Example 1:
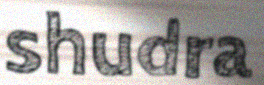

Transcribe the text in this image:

shudra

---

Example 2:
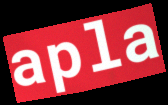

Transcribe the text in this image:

apla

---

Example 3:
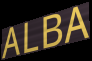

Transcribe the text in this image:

ALBA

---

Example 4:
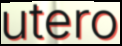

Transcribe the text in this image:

utero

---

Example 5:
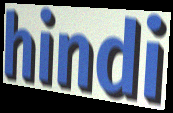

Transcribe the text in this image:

hindi